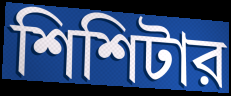
শিশিটার